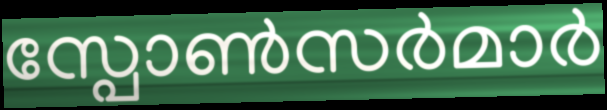
സ്പോൺസർമാർ